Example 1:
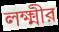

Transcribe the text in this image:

লক্ষ্মীর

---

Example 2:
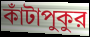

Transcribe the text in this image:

কাঁটাপুকুর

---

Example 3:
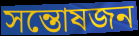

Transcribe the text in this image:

সন্তোষজন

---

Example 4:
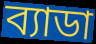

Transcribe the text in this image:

ব্যাডা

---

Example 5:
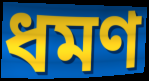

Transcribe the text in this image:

ধমণ